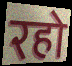
रहो